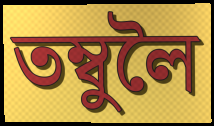
তম্বুলৈ